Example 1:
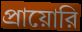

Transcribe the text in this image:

প্রায়োরি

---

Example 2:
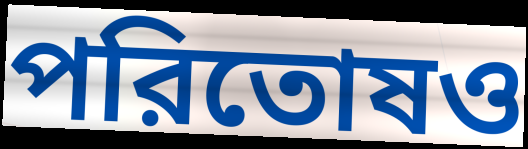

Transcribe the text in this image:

পরিতোষও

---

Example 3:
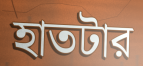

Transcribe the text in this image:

হাতটার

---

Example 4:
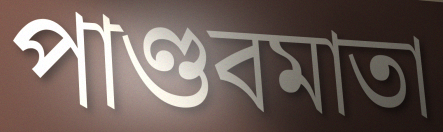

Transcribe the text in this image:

পাণ্ডবমাতা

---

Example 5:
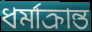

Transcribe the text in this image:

ধর্মাক্রান্ত